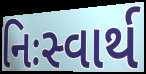
નિઃસ્વાર્થ